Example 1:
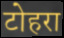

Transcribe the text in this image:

टोहरा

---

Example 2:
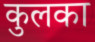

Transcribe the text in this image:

कुलका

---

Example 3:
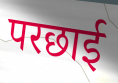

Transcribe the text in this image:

परछाई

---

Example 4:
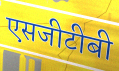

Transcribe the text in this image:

एसजीटीबी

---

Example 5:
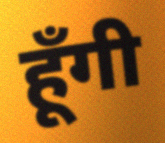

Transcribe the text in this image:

हूँगी